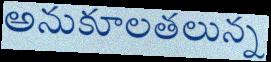
అనుకూలతలున్న